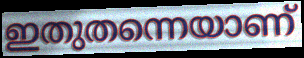
ഇതുതന്നെയാണ്